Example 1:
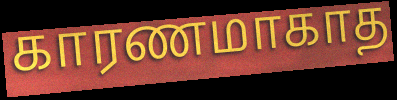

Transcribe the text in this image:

காரணமாகாத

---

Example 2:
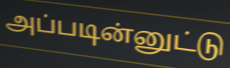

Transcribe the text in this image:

அப்படின்னுட்டு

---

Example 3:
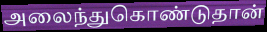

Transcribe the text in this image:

அலைந்துகொண்டுதான்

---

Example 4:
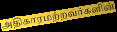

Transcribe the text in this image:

அதிகாரமற்றவர்களின்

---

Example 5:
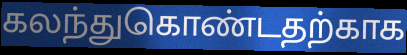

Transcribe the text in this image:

கலந்துகொண்டதற்காக